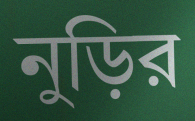
নুড়ির